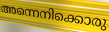
അന്നെനിക്കൊരു